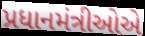
પ્રધાનમંત્રીઓએ